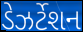
ડેઝર્ટેશન